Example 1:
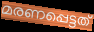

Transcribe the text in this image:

മരണപ്പെട്ടത്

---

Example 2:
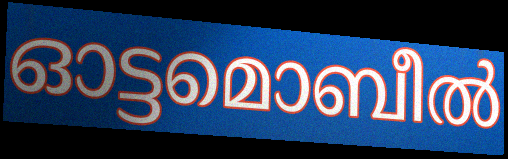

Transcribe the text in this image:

ഓട്ടമൊബീൽ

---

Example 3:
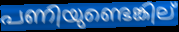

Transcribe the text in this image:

പണിയുണ്ടെങ്കില്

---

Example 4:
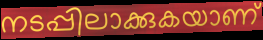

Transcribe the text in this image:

നടപ്പിലാക്കുകയാണ്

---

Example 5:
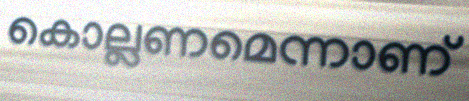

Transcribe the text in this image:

കൊല്ലണമെന്നാണ്